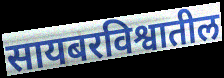
सायबरविश्वातील